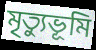
মৃত্যুভূমি